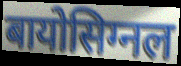
बायोसिग्नल